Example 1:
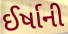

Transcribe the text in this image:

ઈર્ષાની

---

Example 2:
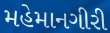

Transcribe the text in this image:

મહેમાનગીરી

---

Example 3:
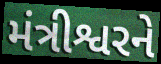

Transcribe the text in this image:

મંત્રીશ્વરને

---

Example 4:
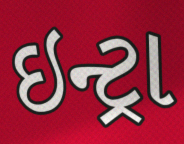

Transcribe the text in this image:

ઇન્ટ્રા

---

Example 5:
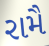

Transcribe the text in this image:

રામૈ